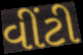
વીંટી